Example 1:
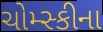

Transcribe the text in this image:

ચોમ્સ્કીના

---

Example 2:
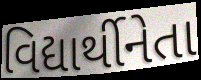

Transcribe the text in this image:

વિદ્યાર્થીનેતા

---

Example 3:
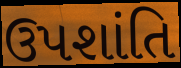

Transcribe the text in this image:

ઉપશાંતિ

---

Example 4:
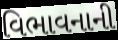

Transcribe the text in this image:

વિભાવનાની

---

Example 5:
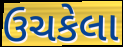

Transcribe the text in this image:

ઉચકેલા